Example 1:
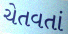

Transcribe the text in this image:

ચેતવતાં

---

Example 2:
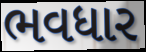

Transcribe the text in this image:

ભવધાર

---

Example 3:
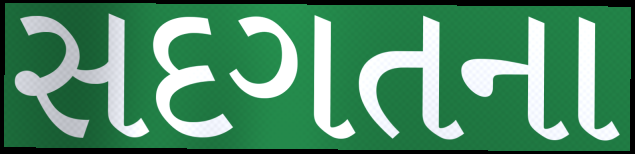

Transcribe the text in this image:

સદગતના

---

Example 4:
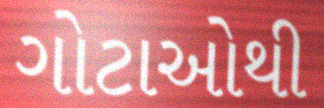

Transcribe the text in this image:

ગોટાઓથી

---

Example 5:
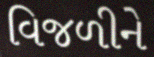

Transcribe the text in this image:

વિજળીને